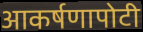
आकर्षणापोटी